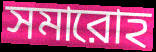
সমারোহ